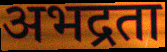
अभद्रता